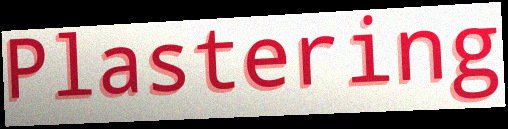
Plastering